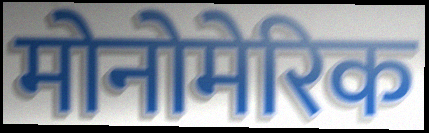
मोनोमेरिक